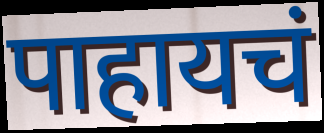
पाहायचं